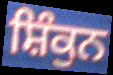
ਸ਼ਿੰਕੁਨ